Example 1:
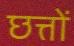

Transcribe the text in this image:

छत्तों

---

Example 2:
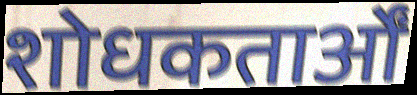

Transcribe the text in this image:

शोधकतार्ओं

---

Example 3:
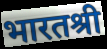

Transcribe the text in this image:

भारतश्री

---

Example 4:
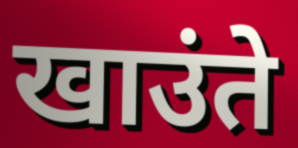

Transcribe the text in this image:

खाउंते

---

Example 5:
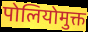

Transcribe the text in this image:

पोलियोमुक्त